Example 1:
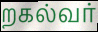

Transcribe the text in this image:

றகல்வர்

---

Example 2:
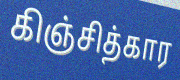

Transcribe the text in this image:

கிஞ்சித்கார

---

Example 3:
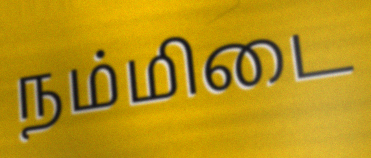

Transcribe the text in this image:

நம்மிடை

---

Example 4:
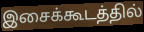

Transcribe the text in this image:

இசைக்கூடத்தில்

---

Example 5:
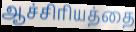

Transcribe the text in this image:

ஆச்சிரியத்தை